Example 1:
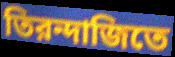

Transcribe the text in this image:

তিরন্দাজিতে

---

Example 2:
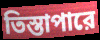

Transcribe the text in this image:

তিস্তাপারে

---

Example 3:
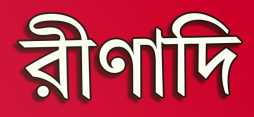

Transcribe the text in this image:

রীণাদি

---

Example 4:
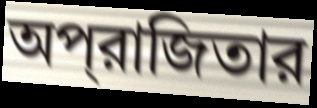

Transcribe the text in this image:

অপ্‌রাজিতার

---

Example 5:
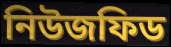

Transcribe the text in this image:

নিউজফিড